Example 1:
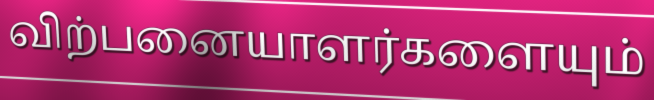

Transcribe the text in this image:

விற்பனையாளர்களையும்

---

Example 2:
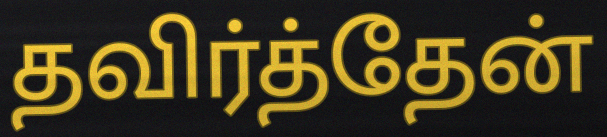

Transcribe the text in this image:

தவிர்த்தேன்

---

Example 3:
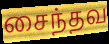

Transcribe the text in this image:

சைந்தவ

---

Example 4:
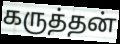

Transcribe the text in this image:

கருத்தன்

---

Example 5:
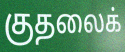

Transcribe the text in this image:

குதலைக்